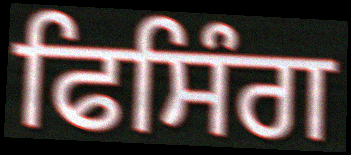
ਫਿਸਿੰਗ